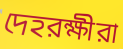
দেহরক্ষীরা